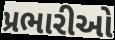
પ્રભારીઓ